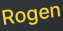
Rogen